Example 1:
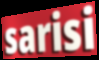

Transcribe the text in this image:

sarisi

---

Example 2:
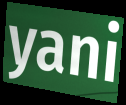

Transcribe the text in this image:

yani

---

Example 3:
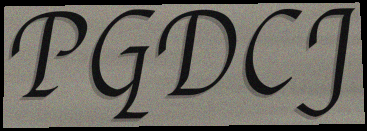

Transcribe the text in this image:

PGDCJ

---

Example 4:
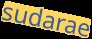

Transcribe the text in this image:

sudarae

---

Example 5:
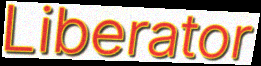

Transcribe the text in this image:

Liberator